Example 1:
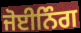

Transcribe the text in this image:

ਜੋਈਨਿੰਗ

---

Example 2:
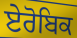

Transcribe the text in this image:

ਏਰੋਬਿਕ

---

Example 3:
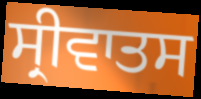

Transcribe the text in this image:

ਸ੍ਰੀਵਾਤਸ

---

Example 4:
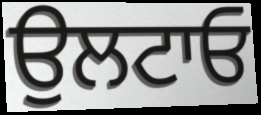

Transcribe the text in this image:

ਉਲਟਾਓ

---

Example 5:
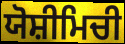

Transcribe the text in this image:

ਯੋਸ਼ੀਮਿਚੀ